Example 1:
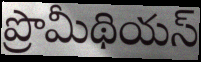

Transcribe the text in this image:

ప్రొమీథియస్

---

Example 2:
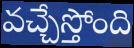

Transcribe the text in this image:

వచ్చేస్తోంది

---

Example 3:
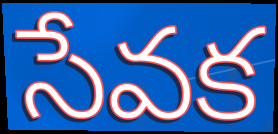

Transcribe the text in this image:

సేవక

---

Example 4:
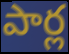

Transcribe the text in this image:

పార్ల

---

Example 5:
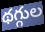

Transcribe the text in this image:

థగ్గుల